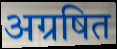
अग्रषित